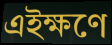
এইক্ষণে